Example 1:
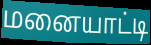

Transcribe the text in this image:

மனையாட்டி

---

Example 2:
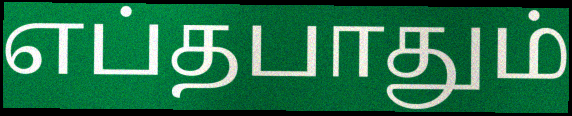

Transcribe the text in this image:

எப்தபாதும்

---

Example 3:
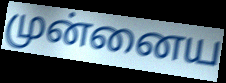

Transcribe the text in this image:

முன்னைய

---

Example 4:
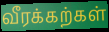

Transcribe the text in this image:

வீரக்கற்கள்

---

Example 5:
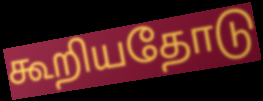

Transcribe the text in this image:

கூறியதோடு